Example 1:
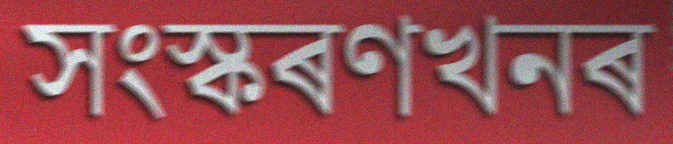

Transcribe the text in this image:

সংস্কৰণখনৰ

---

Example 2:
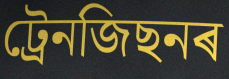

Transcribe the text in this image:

ট্ৰেনজিছনৰ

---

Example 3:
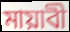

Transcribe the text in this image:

মায়াবী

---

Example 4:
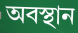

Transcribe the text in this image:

অবস্থান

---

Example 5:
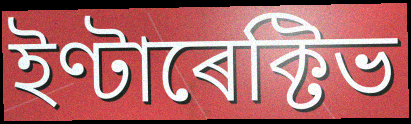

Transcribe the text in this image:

ইণ্টাৰেক্টিভ